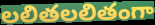
లలితలలితంగా